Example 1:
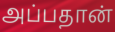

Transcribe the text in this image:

அப்பதான்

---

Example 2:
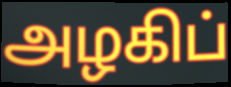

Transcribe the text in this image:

அழகிப்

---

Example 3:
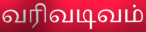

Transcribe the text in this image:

வரிவடிவம்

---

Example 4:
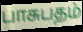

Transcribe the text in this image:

பாசுபதம்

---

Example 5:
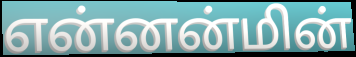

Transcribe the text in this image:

என்னன்மின்